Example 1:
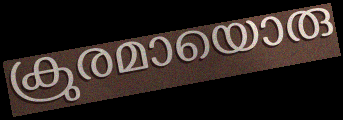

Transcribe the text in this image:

ക്രുരമായൊരു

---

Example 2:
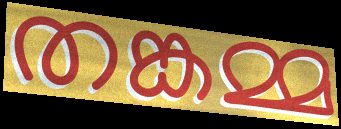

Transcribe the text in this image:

തങ്കമ്മ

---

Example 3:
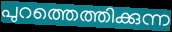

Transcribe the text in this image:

പുറത്തെത്തിക്കുന്ന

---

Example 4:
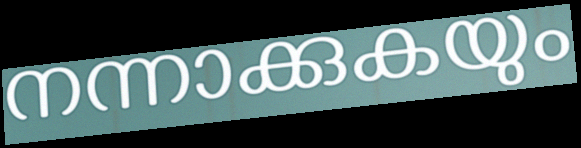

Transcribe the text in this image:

നന്നാക്കുകയും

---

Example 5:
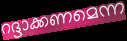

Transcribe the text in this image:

റദ്ദാക്കണമെന്ന